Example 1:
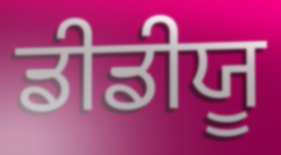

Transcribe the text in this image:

ਡੀਡੀਯੂ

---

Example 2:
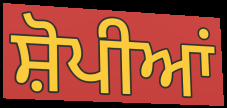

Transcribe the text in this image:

ਸ਼ੋਪੀਆਂ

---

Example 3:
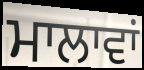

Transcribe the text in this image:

ਮਾਲਾਵਾਂ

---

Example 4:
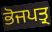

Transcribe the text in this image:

ਭੋਜਪਤ੍ਰ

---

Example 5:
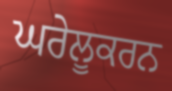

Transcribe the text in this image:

ਘਰੇਲੂਕਰਨ